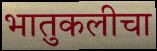
भातुकलीचा